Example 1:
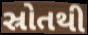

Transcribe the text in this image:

સ્રોતથી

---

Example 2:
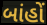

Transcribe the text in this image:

બાંહોં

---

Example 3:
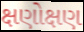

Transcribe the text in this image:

ક્ષણોક્ષણ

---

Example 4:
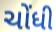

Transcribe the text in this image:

ચોંધી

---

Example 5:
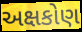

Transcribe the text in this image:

અક્ષકોણ